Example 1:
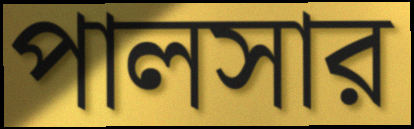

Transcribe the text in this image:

পালসার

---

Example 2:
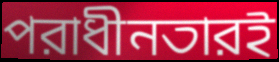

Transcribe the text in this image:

পরাধীনতারই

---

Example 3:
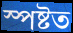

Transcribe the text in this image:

স্পষ্টত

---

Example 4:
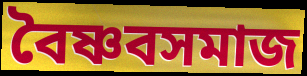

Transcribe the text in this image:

বৈষ্ণবসমাজ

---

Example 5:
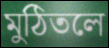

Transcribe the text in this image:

মুঠিতলে